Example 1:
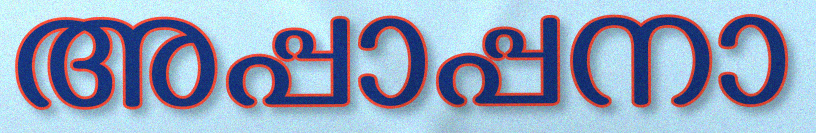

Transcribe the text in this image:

അപ്പാപ്പനാ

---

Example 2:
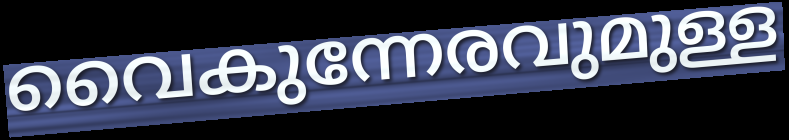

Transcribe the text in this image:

വൈകുന്നേരവുമുള്ള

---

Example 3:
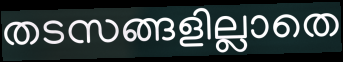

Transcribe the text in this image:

തടസങ്ങളില്ലാതെ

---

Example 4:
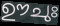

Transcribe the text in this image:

ഊചുഃ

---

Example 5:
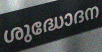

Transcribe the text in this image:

ശുദ്ധോദന